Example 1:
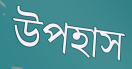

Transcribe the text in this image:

উপহাস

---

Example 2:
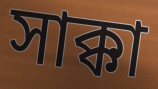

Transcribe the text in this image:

সাক্কা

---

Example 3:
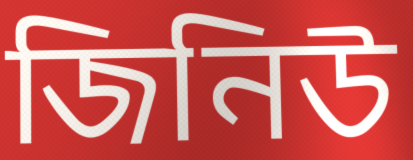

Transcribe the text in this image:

জিনিউ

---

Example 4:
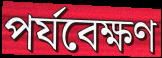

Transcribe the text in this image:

পর্যবেক্ষণ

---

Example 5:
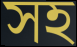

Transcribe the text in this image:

সহ